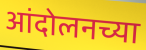
आंदोलनच्या